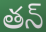
తన్